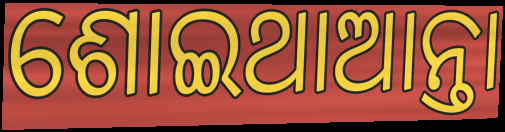
ଶୋଇଥାଆନ୍ତା